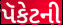
પૅકેટની